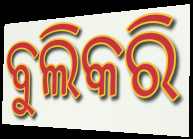
ବୁଲିକରି